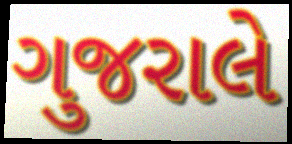
ગુજરાલે